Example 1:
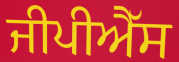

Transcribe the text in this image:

ਜੀਪੀਐੱਸ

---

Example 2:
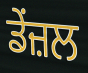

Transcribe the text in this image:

ਡੇਂਜ਼ਲ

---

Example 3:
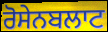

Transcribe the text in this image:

ਰੋਸੇਨਬਲਾਟ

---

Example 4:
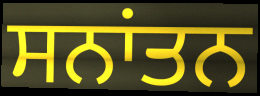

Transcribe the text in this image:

ਸਨਾਂਤਨ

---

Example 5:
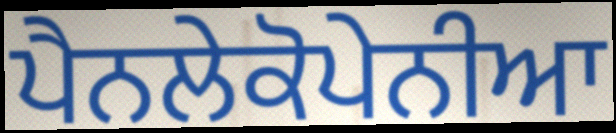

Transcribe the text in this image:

ਪੈਨਲੇਕੋਪੇਨੀਆ